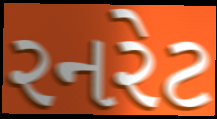
રનરેટ